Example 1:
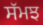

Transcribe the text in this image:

ਸੱਮਝ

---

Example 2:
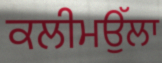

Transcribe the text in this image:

ਕਲੀਮਉੱਲਾ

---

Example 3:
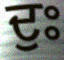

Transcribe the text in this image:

ਦੁਃ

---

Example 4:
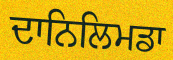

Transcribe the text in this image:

ਦਾਨਿਲਿਮਡਾ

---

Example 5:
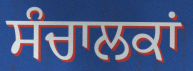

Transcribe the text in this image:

ਸੰਚਾਲਕਾਂ